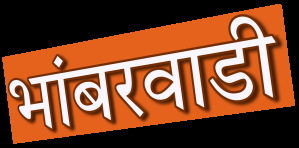
भांबरवाडी